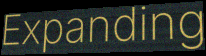
Expanding